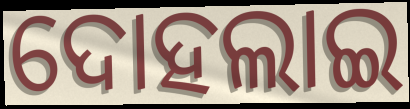
ଦୋହଲାଇ